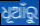
ଧୂଆଁରୁ